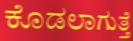
ಕೊಡಲಾಗುತ್ತೆ